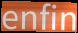
enfin